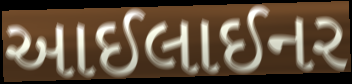
આઈલાઈનર